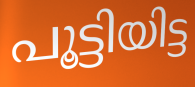
പൂട്ടിയിട്ട